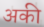
अकी